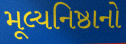
મૂલ્યનિષ્ઠાનો